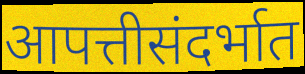
आपत्तीसंदर्भात